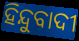
ହିନ୍ଦୁବାଦୀ